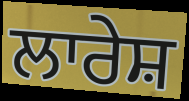
ਲਾਰੇਸ਼